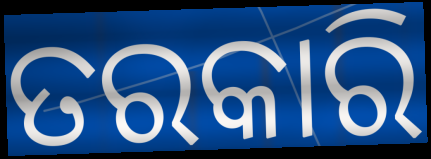
ତରକାରି